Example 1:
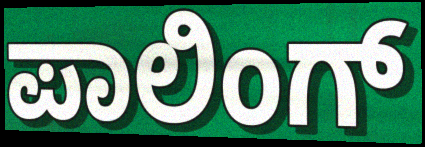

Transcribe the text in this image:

ಪಾಲಿಂಗ್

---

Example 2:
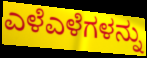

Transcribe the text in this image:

ಎಳೆಎಳೆಗಳನ್ನು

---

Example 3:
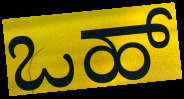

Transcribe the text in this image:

ಒಹ್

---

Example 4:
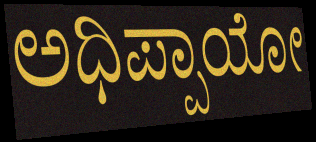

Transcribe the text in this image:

ಅಧಿಪ್ಪಾಯೋ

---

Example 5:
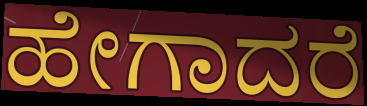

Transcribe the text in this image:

ಹೇಗಾದರೆ